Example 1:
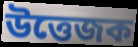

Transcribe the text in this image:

উত্তেজক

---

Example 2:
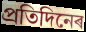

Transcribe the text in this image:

প্ৰতিদিনেৰ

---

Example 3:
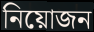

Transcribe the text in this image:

নিয়োজন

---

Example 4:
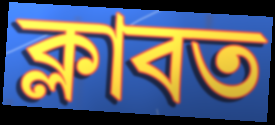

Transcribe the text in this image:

ক্লাবত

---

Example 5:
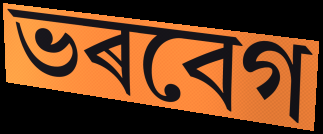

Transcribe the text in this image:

ভৰবেগ